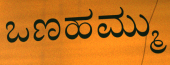
ಒಣಹಮ್ಮು